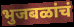
भुजबळांचं